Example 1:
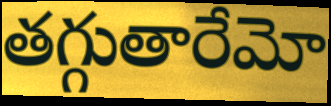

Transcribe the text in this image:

తగ్గుతారేమో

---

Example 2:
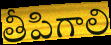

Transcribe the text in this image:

తీపిగాలి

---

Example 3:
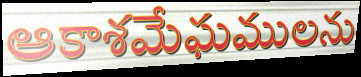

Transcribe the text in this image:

ఆకాశమేఘములను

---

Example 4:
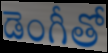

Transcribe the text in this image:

డెంగీతో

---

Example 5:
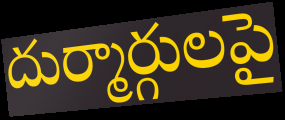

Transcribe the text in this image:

దుర్మార్గులపై